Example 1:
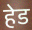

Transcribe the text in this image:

हेड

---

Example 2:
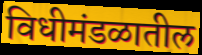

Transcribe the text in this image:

विधीमंडळातील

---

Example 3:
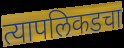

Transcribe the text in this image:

त्यापलिकडचा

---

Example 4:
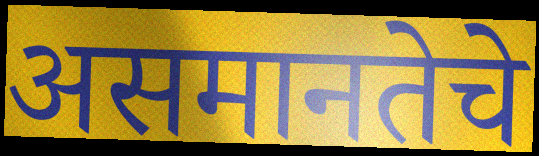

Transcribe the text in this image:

असमानतेचे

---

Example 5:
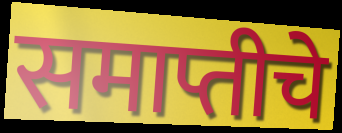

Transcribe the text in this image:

समाप्तीचे